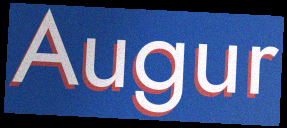
Augur